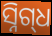
ସ୍ନିଗ୍‌ଧ